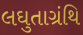
લઘુતાગ્રંથિ